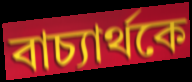
বাচ্যার্থকে